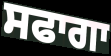
ਸਫਾਗਾ